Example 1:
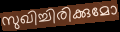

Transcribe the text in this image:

സുഖിച്ചിരിക്കുമോ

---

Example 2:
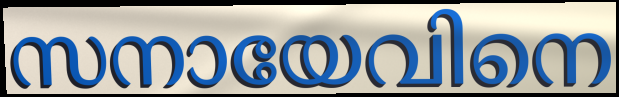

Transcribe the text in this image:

സനായേവിനെ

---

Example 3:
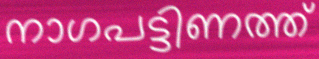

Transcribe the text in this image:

നാഗപട്ടിണത്ത്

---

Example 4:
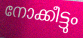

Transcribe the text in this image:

നോക്കീട്ടും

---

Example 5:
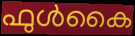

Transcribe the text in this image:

ഫുൾകൈ